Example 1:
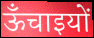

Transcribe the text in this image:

ऊँचाइयों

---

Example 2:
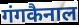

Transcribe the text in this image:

गंगकैनाल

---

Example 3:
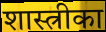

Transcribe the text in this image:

शास्त्रीका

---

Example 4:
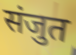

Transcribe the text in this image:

संजुत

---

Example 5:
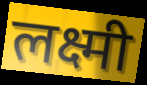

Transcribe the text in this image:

लक्ष्‍मी